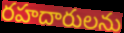
రహదారులను